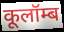
कूलॉम्ब